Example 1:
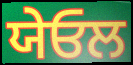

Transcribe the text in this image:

ਯੇਓਲ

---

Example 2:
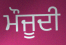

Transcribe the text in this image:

ਮੌਜੂਦੀ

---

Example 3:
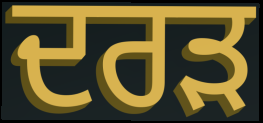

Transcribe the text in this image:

ਦਰੜ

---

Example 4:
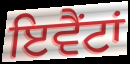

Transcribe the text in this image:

ਇਵੈਂਟਾਂ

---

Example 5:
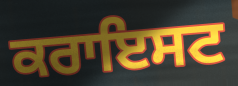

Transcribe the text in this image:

ਕਰਾਇਸਟ